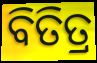
ବିତିତ୍ର